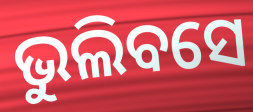
ଭୁଲିବସେ